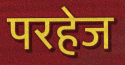
परहेज